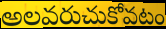
అలవరుచుకోవటం